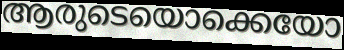
ആരുടെയൊക്കെയോ